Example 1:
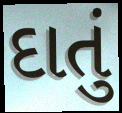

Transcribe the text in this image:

દાતું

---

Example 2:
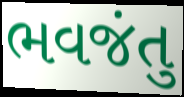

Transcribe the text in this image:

ભવજંતુ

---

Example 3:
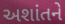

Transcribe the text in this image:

અશાંતને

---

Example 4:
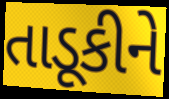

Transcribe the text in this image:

તાડૂકીને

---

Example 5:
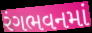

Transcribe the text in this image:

રંગભવનમાં